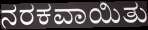
ನರಕವಾಯಿತು